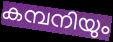
കമ്പനിയും